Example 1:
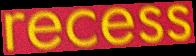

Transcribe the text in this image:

recess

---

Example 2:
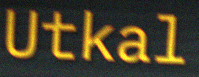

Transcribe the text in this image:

Utkal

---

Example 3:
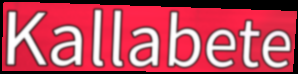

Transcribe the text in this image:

Kallabete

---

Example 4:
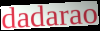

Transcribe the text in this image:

dadarao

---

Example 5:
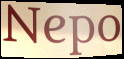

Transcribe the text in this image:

Nepo